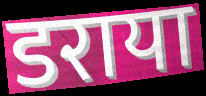
डराया